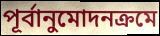
পূর্বানুমোদনক্রমে